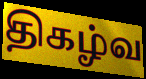
திகழ்வ